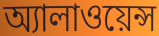
অ্যালাওয়েন্স